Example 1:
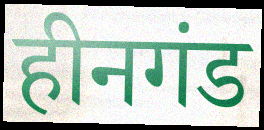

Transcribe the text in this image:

हीनगंड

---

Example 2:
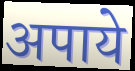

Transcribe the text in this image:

अपाये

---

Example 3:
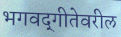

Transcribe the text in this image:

भगवद्‌गीतेवरील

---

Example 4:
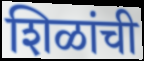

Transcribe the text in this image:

शिळांची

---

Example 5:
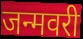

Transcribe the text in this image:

जन्मवरी